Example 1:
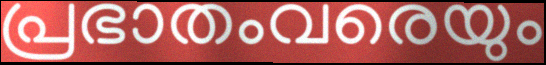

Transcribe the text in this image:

പ്രഭാതംവരെയും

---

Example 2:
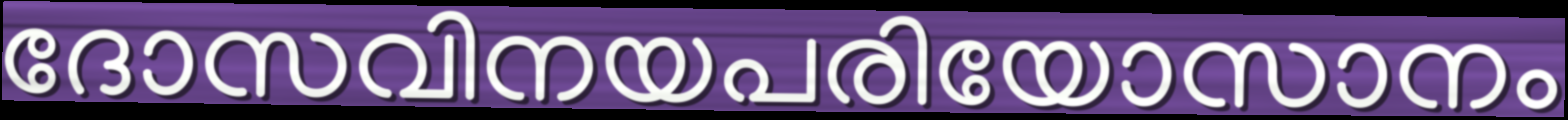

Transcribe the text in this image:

ദോസവിനയപരിയോസാനം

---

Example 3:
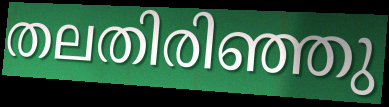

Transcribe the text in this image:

തലതിരിഞ്ഞു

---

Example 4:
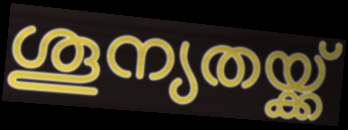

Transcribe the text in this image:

ശൂന്യതയ്ക്ക്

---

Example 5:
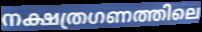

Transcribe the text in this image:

നക്ഷത്രഗണത്തിലെ